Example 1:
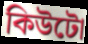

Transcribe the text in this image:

কিউটো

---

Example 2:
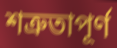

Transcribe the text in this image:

শত্রুতাপূর্ণ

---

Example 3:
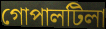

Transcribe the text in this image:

গোপালটিলা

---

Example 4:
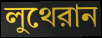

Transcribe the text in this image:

লুথেরান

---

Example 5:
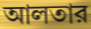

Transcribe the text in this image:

আলতার